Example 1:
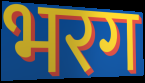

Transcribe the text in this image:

भरग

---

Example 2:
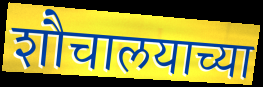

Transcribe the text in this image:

शौचालयाच्या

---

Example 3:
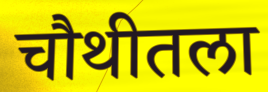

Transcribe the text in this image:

चौथीतला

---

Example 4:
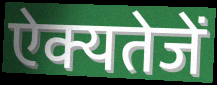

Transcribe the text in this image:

ऐक्यतेजें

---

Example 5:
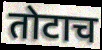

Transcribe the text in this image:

तोटाच